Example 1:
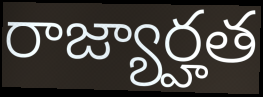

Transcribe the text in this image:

రాజ్యార్హత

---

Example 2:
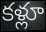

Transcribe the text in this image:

కళ్లూ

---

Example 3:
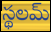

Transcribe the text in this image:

స్థలమ్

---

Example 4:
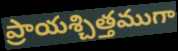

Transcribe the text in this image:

ప్రాయశ్చిత్తముగా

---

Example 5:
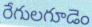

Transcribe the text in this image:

రేగులగూడెం